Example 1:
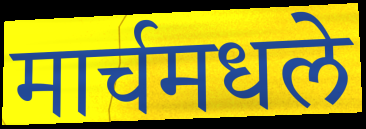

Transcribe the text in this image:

मार्चमधले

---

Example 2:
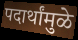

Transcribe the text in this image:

पदार्थांमुळे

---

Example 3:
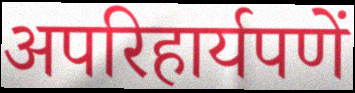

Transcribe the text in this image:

अपरिहार्यपणें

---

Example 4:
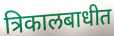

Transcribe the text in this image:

त्रिकालबाधीत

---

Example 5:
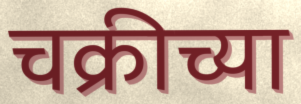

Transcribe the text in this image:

चक्रीच्या